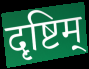
दृष्टिम्